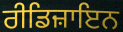
ਰੀਡਿਜ਼ਾਇਨ